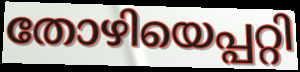
തോഴിയെപ്പറ്റി